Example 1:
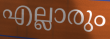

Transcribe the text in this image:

എല്ലാരും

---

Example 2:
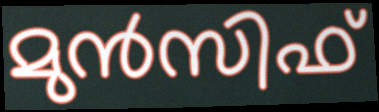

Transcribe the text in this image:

മുൻസിഫ്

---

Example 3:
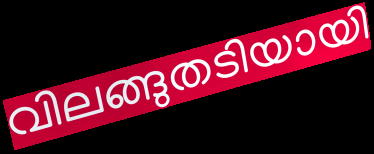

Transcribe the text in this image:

വിലങ്ങുതടിയായി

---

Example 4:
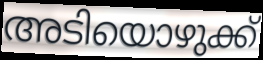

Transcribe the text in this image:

അടിയൊഴുക്ക്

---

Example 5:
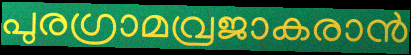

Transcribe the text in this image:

പുരഗ്രാമവ്രജാകരാൻ